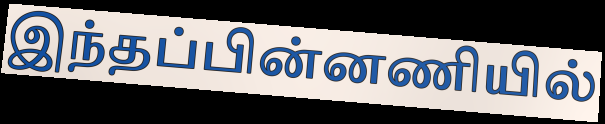
இந்தப்பின்னணியில்